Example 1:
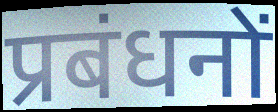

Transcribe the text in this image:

प्रबंधनों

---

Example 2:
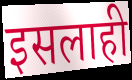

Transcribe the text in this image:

इसलाही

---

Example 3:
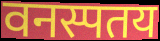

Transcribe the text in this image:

वनस्पतय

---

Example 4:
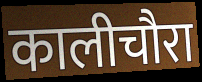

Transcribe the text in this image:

कालीचौरा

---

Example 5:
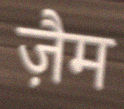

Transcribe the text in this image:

ज़ैम